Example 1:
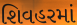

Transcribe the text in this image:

શિવહરમાં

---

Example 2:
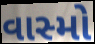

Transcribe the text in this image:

વાસ્મો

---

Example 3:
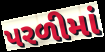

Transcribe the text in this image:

પરળીમાં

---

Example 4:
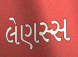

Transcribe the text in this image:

લેણસ્સ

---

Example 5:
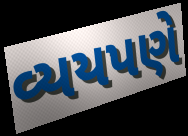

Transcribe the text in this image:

વ્યયપણે